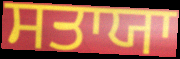
ਸਤਾਯਾ